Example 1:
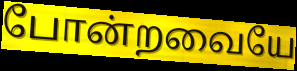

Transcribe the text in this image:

போன்றவையே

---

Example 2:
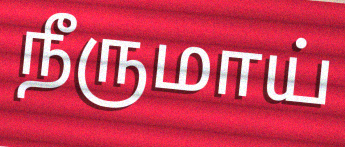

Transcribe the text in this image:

நீருமாய்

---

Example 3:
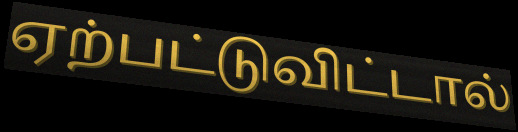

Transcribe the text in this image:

ஏற்பட்டுவிட்டால்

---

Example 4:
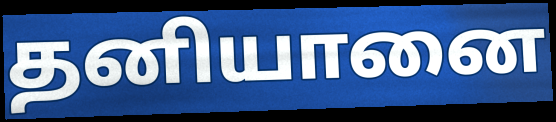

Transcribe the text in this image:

தனியானை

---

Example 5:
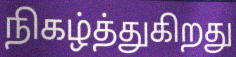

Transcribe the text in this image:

நிகழ்த்துகிறது